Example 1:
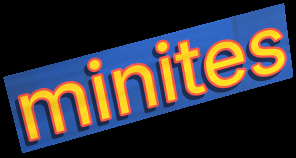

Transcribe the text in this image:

minites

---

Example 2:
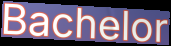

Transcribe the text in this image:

Bachelor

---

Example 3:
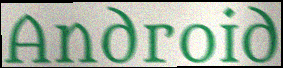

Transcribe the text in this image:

Android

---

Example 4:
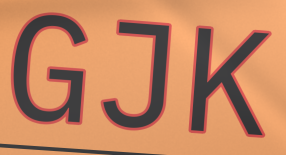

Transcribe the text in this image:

GJK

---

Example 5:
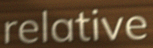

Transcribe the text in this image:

relative